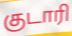
குடாரி